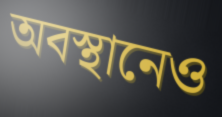
অবস্থানেও